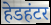
हेडहंटर